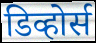
डिव्होर्स